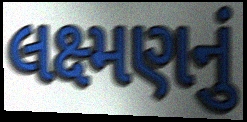
લક્ષ્મણનું